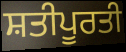
ਸ਼ਤੀਪੂਰਤੀ